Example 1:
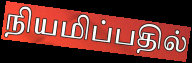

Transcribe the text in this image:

நியமிப்பதில்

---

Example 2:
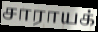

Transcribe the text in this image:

சாராயக்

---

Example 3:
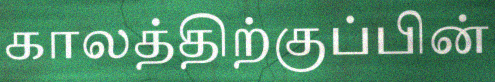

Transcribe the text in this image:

காலத்திற்குப்பின்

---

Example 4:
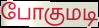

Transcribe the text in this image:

போகுமடி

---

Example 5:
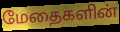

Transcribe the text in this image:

மேதைகளின்